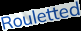
Rouletted